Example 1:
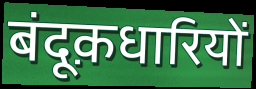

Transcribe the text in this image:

बंदूक़धारियों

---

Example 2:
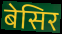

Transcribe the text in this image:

बेसिर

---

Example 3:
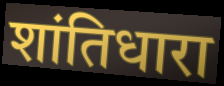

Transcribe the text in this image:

शांतिधारा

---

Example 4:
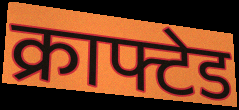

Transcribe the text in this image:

क्राफ्टेड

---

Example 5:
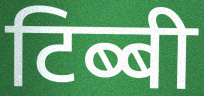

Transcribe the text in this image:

टिब्बी